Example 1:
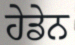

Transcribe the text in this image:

ਹੇਡੇਨ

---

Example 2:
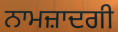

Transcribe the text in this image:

ਨਾਮਜ਼ਾਦਗੀ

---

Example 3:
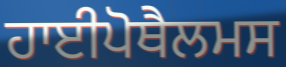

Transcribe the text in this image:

ਹਾਈਪੋਥੈਲਮਸ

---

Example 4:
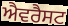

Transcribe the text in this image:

ਐਵਰੈਸਟ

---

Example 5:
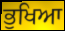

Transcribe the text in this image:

ਭੁਖਿਆ